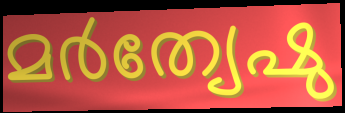
മർത്യേഷു